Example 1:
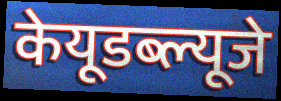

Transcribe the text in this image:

केयूडब्ल्यूजे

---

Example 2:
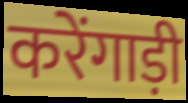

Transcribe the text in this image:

करेंगाड़ी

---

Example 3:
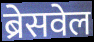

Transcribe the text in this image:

ब्रेसवेल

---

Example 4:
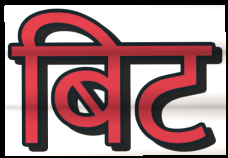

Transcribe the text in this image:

बिट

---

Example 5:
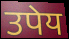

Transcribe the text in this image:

उपेय